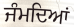
ਜੰਮਦਿਆਂ